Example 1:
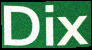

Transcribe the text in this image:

Dix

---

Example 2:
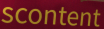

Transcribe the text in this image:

scontent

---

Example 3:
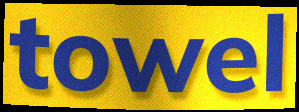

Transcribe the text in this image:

towel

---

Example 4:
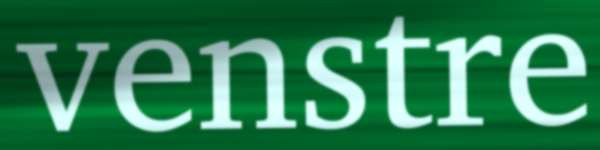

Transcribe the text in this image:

venstre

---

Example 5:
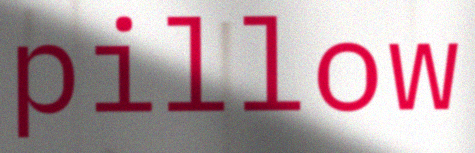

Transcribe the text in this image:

pillow